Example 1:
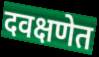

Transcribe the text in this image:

दवक्षणेत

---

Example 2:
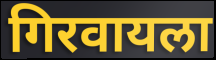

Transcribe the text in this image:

गिरवायला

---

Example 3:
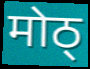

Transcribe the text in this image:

मोठ्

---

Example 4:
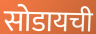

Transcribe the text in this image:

सोडायची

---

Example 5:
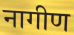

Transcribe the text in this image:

नागीण